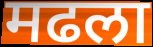
मढला